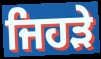
ਜਿਹਡ਼ੇ